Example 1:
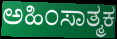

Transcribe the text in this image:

ಅಹಿಂಸಾತ್ಮಕ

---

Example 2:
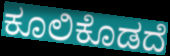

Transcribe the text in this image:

ಕೂಲಿಕೊಡದೆ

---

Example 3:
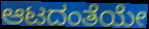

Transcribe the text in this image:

ಆಟದಂತೆಯೇ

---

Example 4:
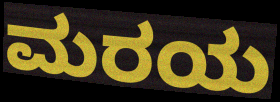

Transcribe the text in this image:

ಮರಯ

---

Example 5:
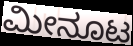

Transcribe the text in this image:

ಮೀನೂಟ